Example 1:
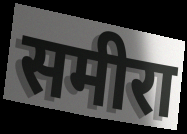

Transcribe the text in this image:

समीरा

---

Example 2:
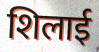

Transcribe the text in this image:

शिलाई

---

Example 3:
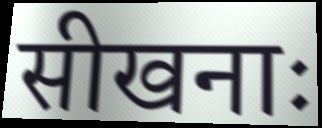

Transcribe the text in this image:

सीखनाः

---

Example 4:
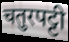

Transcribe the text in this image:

चतुरपट्टी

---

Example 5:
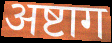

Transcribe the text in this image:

अष्टाग